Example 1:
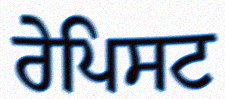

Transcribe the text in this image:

ਰੇਪਿਸਟ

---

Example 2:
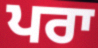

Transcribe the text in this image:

ਪਰਾ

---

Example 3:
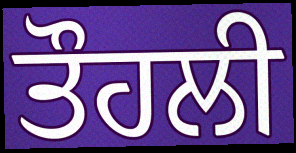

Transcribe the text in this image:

ਤੌਹਲੀ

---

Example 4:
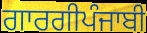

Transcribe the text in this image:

ਗਾਰਗੀਪੰਜਾਬੀ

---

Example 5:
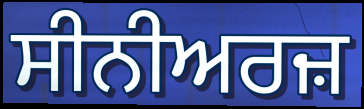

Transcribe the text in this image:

ਸੀਨੀਅਰਜ਼